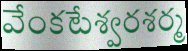
వేంకటేశ్వరశర్మ